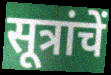
सूत्रांचें